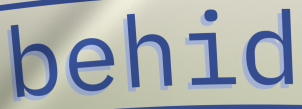
behid